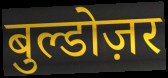
बुल्डोज़र